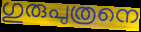
ഗുരുപുത്രനെ